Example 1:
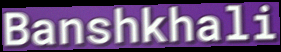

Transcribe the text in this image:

Banshkhali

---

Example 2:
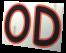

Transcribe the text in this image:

OD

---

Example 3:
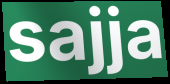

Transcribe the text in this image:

sajja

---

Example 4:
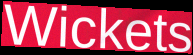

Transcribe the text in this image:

Wickets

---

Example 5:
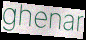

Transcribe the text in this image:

ghenar